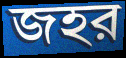
জহর